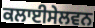
ਕਲਾਈਸੇਲਵਨ